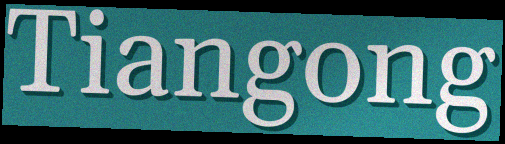
Tiangong